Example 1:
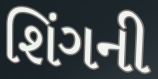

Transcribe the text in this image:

શિંગની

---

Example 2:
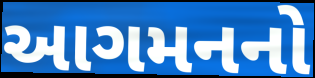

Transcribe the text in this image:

આગમનનો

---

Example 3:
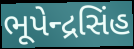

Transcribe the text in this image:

ભૂપેન્દ્રસિંહ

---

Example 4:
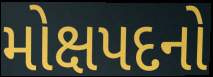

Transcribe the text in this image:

મોક્ષપદનો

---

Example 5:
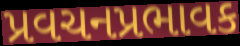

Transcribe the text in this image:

પ્રવચનપ્રભાવક